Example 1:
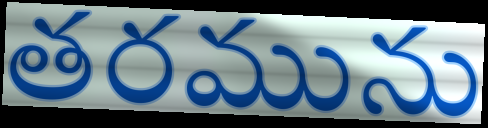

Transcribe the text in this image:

తరమును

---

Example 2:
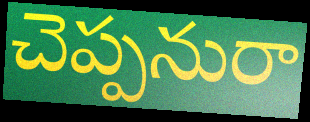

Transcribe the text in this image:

చెప్పనురా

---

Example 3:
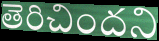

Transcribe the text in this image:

తెరిచిందని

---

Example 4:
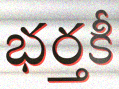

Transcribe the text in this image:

భర్తకీ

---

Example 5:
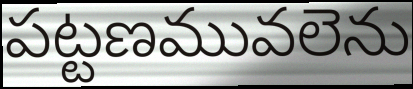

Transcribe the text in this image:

పట్టణమువలెను